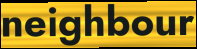
neighbour